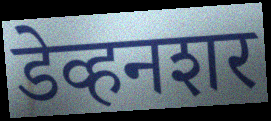
डेव्हनशर